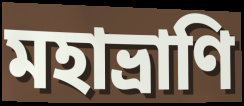
মহাভ্রাণি